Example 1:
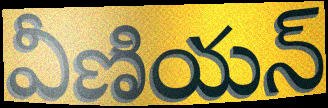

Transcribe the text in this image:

వీణియన్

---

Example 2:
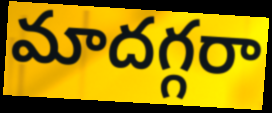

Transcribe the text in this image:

మాదగ్గరా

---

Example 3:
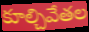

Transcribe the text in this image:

కూల్చివేతల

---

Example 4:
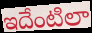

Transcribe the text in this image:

ఇదేంటిలా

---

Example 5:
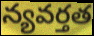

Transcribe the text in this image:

న్యవర్తత